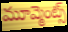
మూవ్మెంట్స్